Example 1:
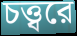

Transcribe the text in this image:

চত্ত্বরে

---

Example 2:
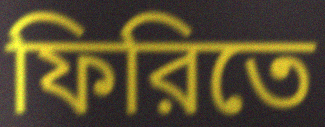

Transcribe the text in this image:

ফিরিতে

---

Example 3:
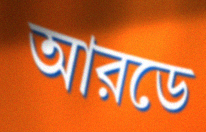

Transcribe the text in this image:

আরডে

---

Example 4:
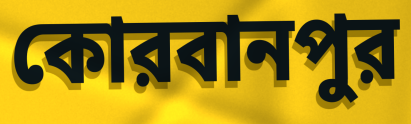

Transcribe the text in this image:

কোরবানপুর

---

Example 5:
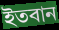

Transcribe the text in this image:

ইতবান